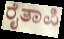
ರೈತಾಪಿ